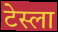
टेस्ला